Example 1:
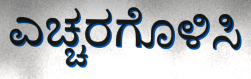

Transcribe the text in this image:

ಎಚ್ಚರಗೊಳಿಸಿ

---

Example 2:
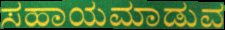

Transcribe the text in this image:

ಸಹಾಯಮಾಡುವ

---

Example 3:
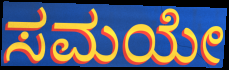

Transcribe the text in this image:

ಸಮಯೇ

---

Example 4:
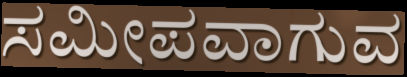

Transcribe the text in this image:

ಸಮೀಪವಾಗುವ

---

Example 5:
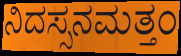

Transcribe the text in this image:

ನಿದಸ್ಸನಮತ್ತಂ